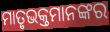
ମାତୃଭକ୍ତମାନଙ୍କର